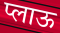
प्लाऊ